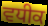
ਵਧੀਕ